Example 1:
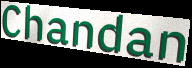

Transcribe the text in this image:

Chandan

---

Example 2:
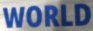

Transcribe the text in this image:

WORLD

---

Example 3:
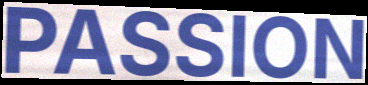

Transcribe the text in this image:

PASSION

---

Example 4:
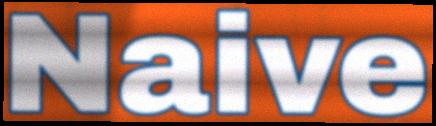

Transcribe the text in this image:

Naive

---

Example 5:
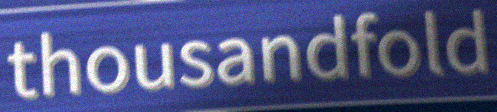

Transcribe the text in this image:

thousandfold